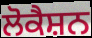
ਲੋਕੈਸ਼ਨ